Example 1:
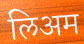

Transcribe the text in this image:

लिअम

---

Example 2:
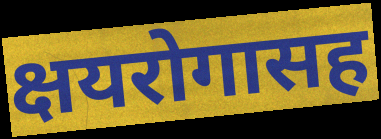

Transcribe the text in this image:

क्षयरोगासह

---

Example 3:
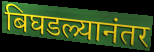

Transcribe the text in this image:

बिघडल्यानंतर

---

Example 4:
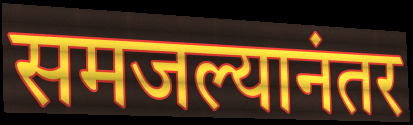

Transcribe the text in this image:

समजल्यानंतर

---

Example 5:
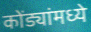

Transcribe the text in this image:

कोंड्यांमध्ये